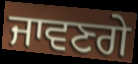
ਜਾਵਣਗੇ